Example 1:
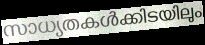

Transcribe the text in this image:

സാധ്യതകൾക്കിടയിലും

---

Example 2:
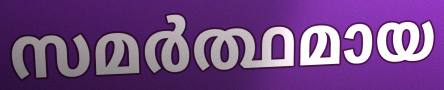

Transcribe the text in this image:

സമർത്ഥമായ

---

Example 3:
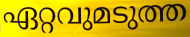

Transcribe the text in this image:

ഏറ്റവുമടുത്ത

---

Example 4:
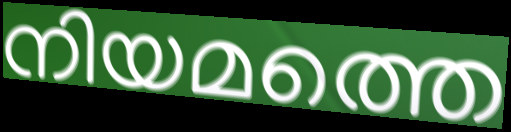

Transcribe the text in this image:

നിയമത്തെ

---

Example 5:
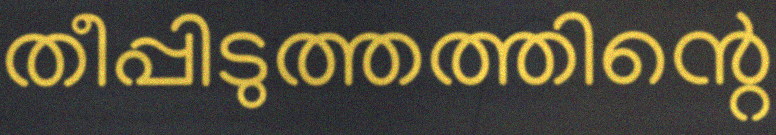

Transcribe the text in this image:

തീപ്പിടുത്തത്തിന്റെ